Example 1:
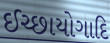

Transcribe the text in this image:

ઈચ્છાયોગાદિ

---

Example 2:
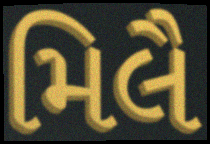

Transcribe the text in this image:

મિલૈ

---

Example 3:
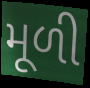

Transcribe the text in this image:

મૂળી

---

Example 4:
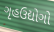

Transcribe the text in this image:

ગૃહઉદ્યોગો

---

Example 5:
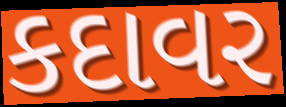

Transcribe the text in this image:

કદાવર